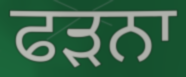
ਫੜਨਾ